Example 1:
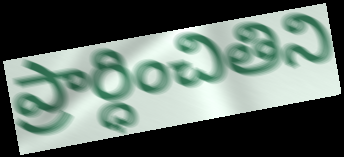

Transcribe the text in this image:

ప్రార్ధించితిని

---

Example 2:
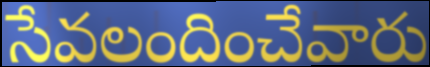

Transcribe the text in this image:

సేవలందించేవారు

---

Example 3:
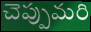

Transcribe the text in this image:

చెప్పుమరి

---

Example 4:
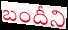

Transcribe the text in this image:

బందీని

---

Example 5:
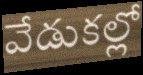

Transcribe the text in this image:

వేడుకల్లో